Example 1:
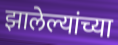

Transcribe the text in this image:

झालेल्यांच्या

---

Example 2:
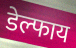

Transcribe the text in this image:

डेल्फाय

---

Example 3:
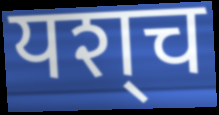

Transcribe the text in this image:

यश्च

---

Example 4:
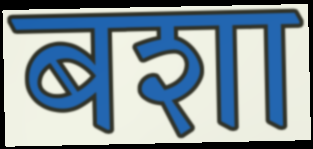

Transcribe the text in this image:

बशा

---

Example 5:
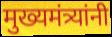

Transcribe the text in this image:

मुख्यमंत्र्यांनी